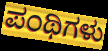
ಪಂಥಿಗಳು